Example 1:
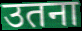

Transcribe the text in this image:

उतना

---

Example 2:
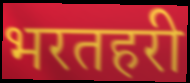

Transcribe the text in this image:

भरतहरी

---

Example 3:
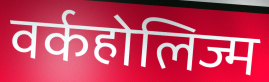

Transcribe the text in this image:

वर्कहोलिज्म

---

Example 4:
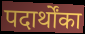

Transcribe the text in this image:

पदार्थोंका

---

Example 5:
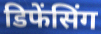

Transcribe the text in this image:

डिफेंसिंग